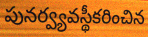
పునర్వ్యవస్థీకరించిన